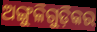
ଅଙ୍ଗୁଳିଗୁଡ଼ିକର